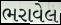
ભરાવેલ